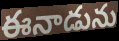
ఈనాడును